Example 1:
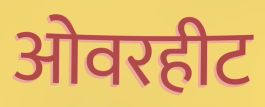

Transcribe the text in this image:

ओवरहीट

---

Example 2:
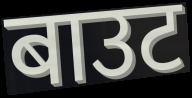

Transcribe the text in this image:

बाउट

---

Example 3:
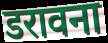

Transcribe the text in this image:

डरावना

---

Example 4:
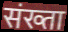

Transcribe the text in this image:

संख्ता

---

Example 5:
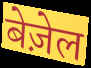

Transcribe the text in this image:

बेज़ेल